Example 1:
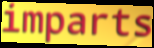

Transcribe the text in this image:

imparts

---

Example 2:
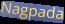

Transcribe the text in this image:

Nagpada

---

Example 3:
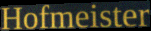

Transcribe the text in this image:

Hofmeister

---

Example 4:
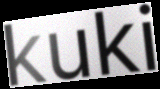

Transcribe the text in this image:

kuki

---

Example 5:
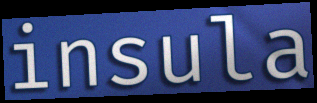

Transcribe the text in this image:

insula